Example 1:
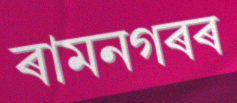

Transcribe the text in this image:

ৰামনগৰৰ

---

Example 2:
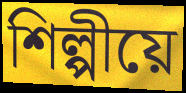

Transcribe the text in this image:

শিল্পীয়ে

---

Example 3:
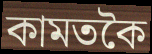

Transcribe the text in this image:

কামতকৈ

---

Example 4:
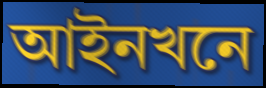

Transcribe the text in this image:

আইনখনে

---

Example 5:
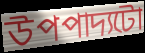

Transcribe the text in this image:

উপপাদ্যটো